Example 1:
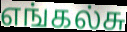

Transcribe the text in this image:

எங்கல்சு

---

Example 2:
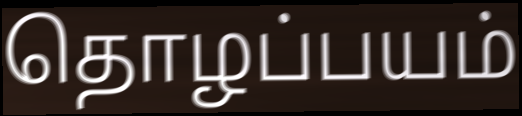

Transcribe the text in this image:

தொழப்பயம்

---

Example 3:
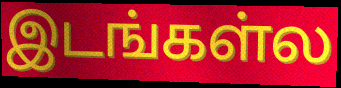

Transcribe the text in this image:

இடங்கள்ல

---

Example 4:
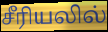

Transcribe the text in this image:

சீரியலில்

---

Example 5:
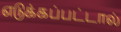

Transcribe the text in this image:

எடுக்கப்பட்டால்